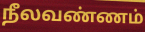
நீலவண்ணம்